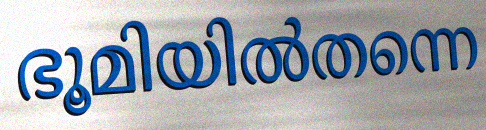
ഭൂമിയിൽതന്നെ